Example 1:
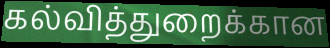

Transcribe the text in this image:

கல்வித்துறைக்கான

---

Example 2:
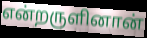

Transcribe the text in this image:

என்றருளினான்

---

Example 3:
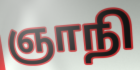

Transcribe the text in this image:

ஞாநி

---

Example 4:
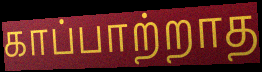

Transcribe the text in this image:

காப்பாற்றாத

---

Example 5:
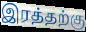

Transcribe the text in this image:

இரத்தற்கு